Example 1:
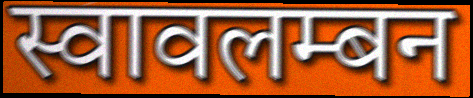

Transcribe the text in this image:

स्वावलम्बन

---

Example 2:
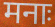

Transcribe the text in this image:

मनाः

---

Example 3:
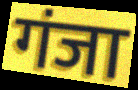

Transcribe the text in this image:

गंजा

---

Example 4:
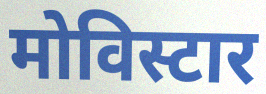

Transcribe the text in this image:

मोविस्टार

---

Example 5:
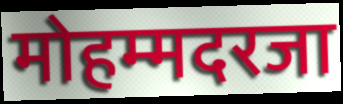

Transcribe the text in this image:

मोहम्मदरजा